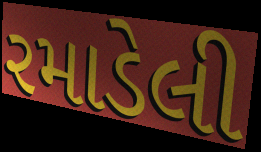
રમાડેલી